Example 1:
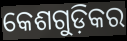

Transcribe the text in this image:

କେଶଗୁଡ଼ିକର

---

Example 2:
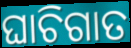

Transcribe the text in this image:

ଘାଚିଗାତ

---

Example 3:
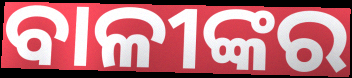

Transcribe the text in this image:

ବାଳୀଙ୍କର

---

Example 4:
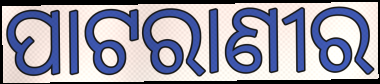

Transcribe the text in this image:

ପାଟରାଣୀର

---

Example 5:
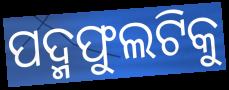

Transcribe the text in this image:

ପଦ୍ମଫୁଲଟିକୁ